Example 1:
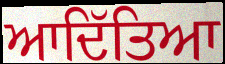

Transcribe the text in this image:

ਆਦਿੱਤਿਆ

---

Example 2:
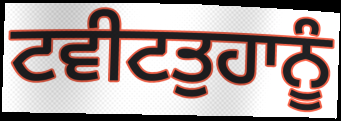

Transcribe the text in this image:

ਟਵੀਟਤੁਹਾਨੂੰ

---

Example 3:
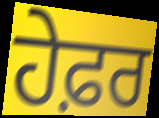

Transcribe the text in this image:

ਹੇਫ਼ਰ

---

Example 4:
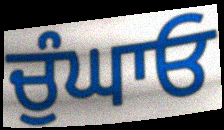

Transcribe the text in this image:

ਚੁੰਘਾਓ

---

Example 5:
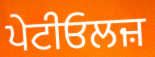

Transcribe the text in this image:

ਪੇਟੀਓਲਜ਼